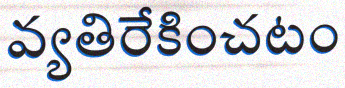
వ్యతిరేకించటం